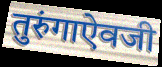
तुरुंगाऐवजी